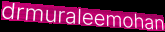
drmuraleemohan